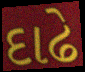
દાઢે